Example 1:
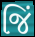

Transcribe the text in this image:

જિં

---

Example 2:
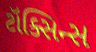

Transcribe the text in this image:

ટૉક્સિન્સ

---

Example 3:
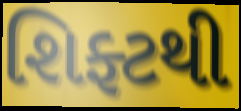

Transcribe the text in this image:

શિફ્ટથી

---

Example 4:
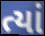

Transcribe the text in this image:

ત્યાં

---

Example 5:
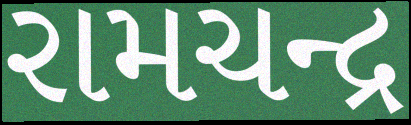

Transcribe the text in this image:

રામચન્દ્ર